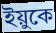
ইয়ুকে